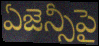
ఏజెన్సీపై